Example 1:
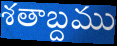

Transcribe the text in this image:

శతాబ్దము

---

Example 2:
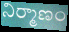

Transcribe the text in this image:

నిర్మాణం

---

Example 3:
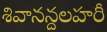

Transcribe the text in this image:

శివానన్దలహరీ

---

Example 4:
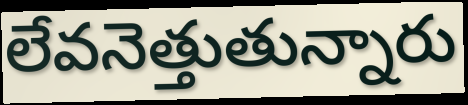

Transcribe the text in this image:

లేవనెత్తుతున్నారు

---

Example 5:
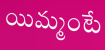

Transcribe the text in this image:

యిమ్మంటే